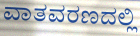
ವಾತವರಣದಲ್ಲಿ